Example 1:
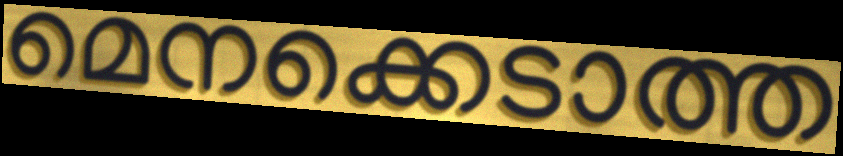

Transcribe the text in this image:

മെനക്കെടാത്ത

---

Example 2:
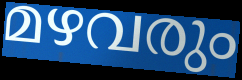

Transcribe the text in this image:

മഴവരും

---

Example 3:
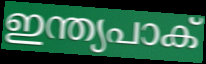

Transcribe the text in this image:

ഇന്ത്യപാക്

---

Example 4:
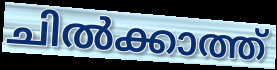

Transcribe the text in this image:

ചിൽക്കാത്ത്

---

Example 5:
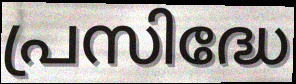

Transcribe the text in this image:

പ്രസിദ്ധേ